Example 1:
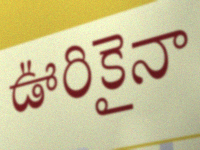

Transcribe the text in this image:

ఊరికైనా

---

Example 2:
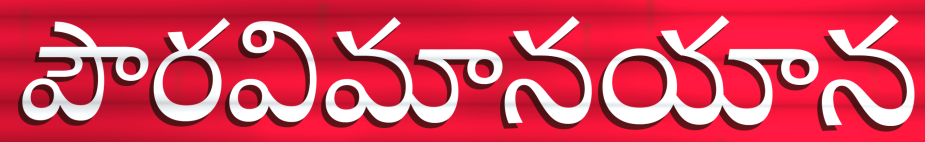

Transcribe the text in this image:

పౌరవిమానయాన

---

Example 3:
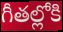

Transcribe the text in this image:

గీతల్లోకి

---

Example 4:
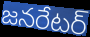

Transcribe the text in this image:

జనరేటర్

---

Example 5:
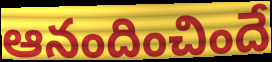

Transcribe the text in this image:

ఆనందించిందే